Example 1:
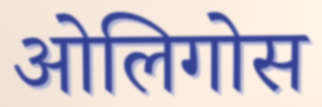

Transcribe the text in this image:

ओलिगोस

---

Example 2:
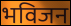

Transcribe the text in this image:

भविजन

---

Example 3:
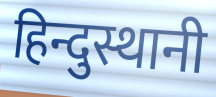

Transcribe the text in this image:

हिन्दुस्थानी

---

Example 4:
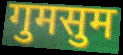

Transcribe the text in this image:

गुमसुम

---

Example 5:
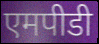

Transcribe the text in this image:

एमपीडी